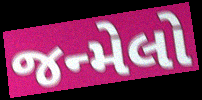
જન્મેલો